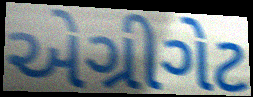
એગ્રીગેટ